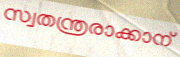
സ്വതന്ത്രരാക്കാന്